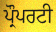
ਪ੍ਰੌਪਰਟੀ